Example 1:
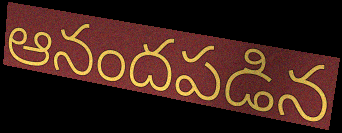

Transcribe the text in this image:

ఆనందపడిన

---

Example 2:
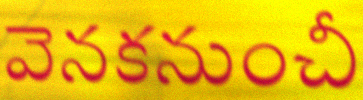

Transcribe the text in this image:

వెనకనుంచీ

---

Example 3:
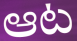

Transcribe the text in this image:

ఆట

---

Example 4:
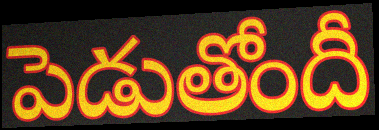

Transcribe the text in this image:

పెడుతోందీ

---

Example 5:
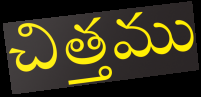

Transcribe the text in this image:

చిత్తము